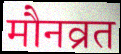
मौनव्रत